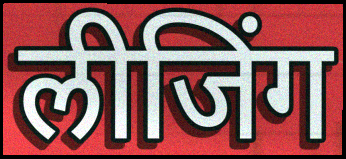
लीजिंग